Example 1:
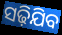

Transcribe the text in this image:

ସଢ଼ିଯିବ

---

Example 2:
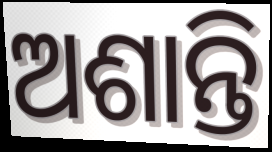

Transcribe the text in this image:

ଅଶାନ୍ତି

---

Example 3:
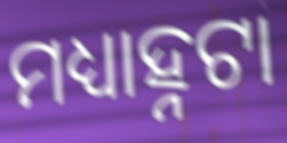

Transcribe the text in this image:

ମଧ୍ୟାହ୍ନଟା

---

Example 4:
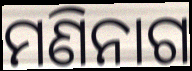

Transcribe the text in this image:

ମଣିନାଗ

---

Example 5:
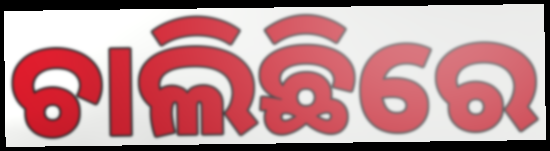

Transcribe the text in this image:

ଚାଲିଛିରେ